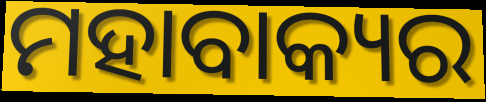
ମହାବାକ୍ୟର